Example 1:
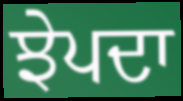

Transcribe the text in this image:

ਝੇਪਦਾ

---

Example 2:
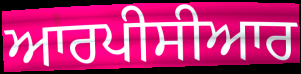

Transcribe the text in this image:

ਆਰਪੀਸੀਆਰ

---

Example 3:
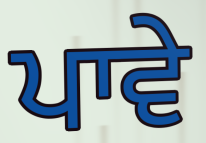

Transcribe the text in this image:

ਪਾਵੇ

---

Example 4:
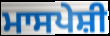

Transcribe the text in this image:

ਮਾਸਪੇਸ਼ੀ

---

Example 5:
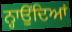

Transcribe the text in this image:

ਨ੍ਹਾਉਂਦਿਆਂ